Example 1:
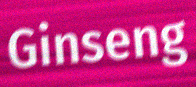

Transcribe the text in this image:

Ginseng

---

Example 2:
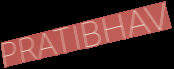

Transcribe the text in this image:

PRATIBHAV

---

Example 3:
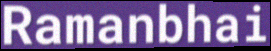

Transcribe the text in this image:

Ramanbhai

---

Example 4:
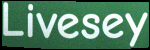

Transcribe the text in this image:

Livesey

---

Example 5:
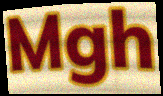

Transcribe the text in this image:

Mgh